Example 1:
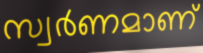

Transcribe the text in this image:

സ്വർണമാണ്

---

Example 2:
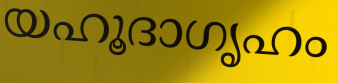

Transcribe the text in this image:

യഹൂദാഗൃഹം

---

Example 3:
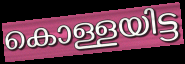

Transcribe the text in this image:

കൊള്ളയിട്ട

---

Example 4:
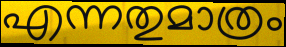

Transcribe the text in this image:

എന്നതുമാത്രം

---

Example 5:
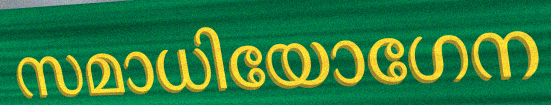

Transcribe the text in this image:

സമാധിയോഗേന